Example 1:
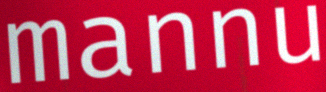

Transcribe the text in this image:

mannu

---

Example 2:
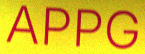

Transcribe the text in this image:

APPG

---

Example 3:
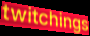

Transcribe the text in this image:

twitchings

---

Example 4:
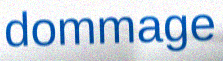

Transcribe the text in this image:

dommage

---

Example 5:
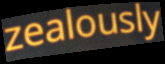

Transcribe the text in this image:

zealously